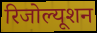
रिजोल्‍यूशन